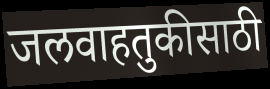
जलवाहतुकीसाठी